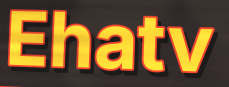
Ehatv